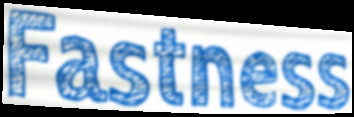
Fastness